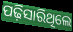
ପଢ଼ିସାରିଥିଲେ